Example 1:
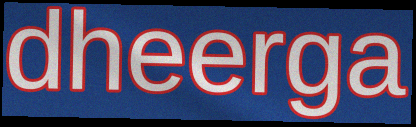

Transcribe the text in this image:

dheerga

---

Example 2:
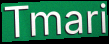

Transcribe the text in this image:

Tmari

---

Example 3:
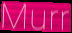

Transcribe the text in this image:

Murr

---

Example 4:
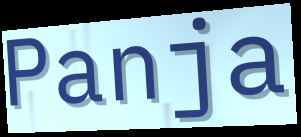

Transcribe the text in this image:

Panja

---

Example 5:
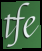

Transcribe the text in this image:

tfe